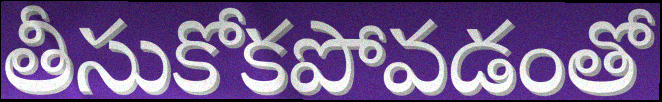
తీసుకోకపోవడంతో